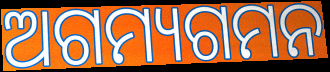
ଅଗମ୍ୟଗମନ